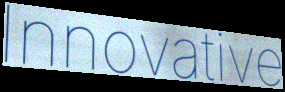
Innovative